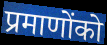
प्रमाणोंको